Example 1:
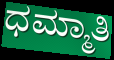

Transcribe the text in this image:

ಧಮ್ಮಾತಿ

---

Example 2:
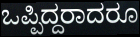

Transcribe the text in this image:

ಒಪ್ಪಿದ್ದರಾದರೂ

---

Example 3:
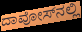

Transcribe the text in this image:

ದಾವೋಸ್‌ನಲ್ಲಿ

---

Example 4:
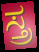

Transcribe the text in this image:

ಸ್ತ್ರ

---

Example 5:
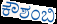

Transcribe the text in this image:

ಕೌಶಂಬಿ